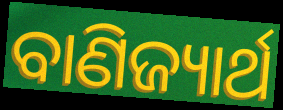
ବାଣିଜ୍ୟାର୍ଥ